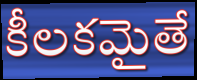
కీలకమైతే